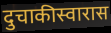
दुचाकीस्वारास